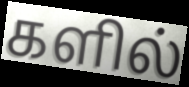
களில்